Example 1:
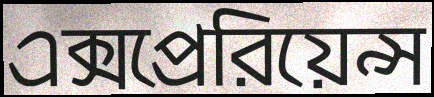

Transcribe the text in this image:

এক্সপ্রেরিয়েন্স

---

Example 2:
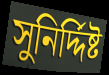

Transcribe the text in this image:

সুনির্দ্দিষ্ট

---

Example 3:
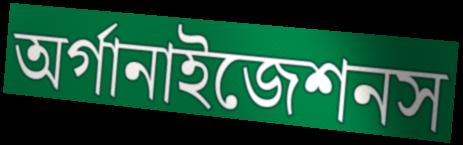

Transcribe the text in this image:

অর্গানাইজেশনস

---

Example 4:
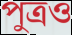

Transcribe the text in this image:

পুত্রও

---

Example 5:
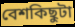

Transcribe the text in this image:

বেশকিছুটা